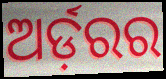
ଅର୍ଡ଼ରର